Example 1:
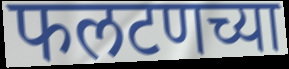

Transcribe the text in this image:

फलटणच्या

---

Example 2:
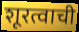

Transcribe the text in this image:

शूरत्वाची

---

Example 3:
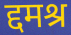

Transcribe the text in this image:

द्दमश्र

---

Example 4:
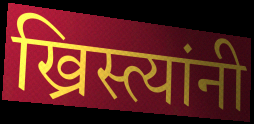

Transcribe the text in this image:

ख्रिस्त्यांनी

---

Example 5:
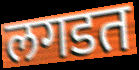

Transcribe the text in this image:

लगडत